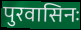
पुरवासिनः